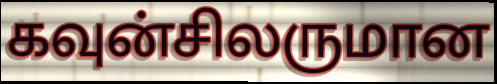
கவுன்சிலருமான